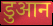
डुआन